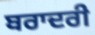
ਬਰਾਦਰੀ